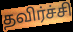
தவிர்ச்சி